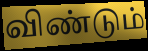
விண்டும்